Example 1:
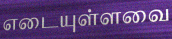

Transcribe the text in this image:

எடையுள்ளவை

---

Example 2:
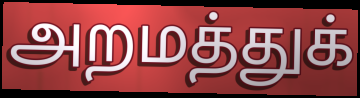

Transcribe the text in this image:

அறமத்துக்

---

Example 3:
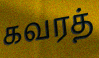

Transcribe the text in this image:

கவரத்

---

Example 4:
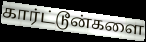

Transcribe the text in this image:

கார்ட்டூன்களை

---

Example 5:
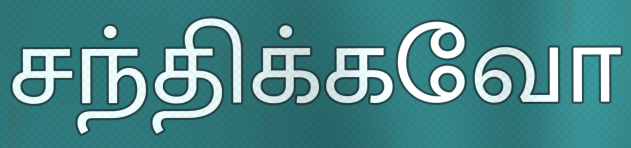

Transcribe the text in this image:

சந்திக்கவோ